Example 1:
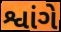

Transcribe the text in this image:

શ્વાંગે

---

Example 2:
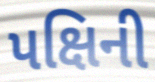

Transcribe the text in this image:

પક્ષિની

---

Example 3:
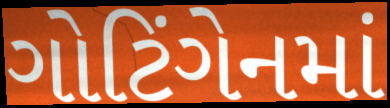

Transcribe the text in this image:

ગોટિંગેનમાં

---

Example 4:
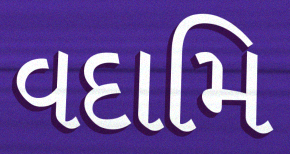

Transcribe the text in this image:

વદામિ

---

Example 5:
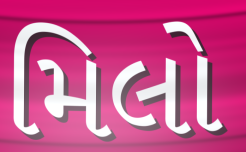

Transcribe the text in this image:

મિલો